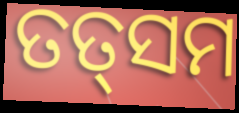
ତତ୍‌ସମ